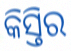
କିସ୍ତିର